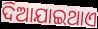
ଦିଆଯାଇଥାଏ